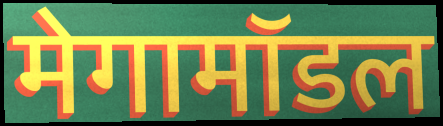
मेगामॉडल